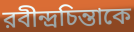
রবীন্দ্রচিন্তাকে